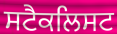
ਸਟੈਕਲਿਸਟ